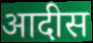
आदीस